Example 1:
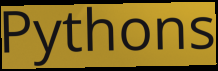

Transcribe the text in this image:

Pythons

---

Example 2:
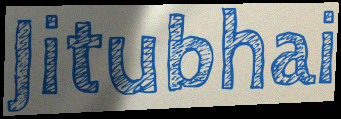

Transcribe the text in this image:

Jitubhai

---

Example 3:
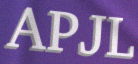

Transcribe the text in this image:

APJL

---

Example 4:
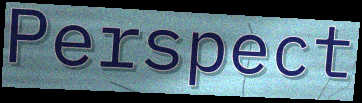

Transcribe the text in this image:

Perspect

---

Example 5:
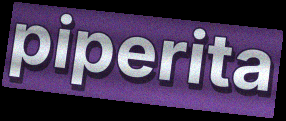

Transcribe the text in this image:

piperita